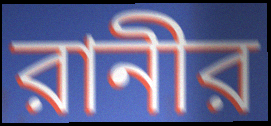
রানীর